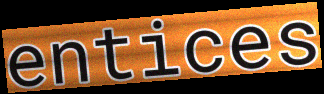
entices